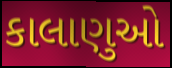
કાલાણુઓ